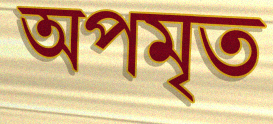
অপমৃত